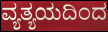
ವ್ಯತ್ಯಯದಿಂದ